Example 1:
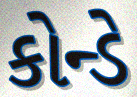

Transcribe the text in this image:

કોન્ડે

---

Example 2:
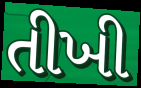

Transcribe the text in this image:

તીખી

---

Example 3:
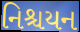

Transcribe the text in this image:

નિશ્ચયન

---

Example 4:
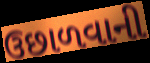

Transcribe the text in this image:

ઉછાળવાની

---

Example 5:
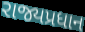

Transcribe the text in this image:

રાજ્યપ્રધાન